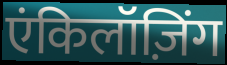
एंकिलॉज़िंग